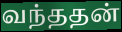
வந்ததன்